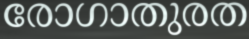
രോഗാതുരത